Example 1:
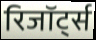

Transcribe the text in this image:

रिजॉर्ट्स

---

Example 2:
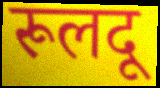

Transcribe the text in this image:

रूलदू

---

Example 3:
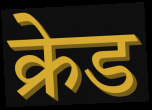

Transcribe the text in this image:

क्रेड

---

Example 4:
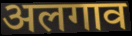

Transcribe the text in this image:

अलगाव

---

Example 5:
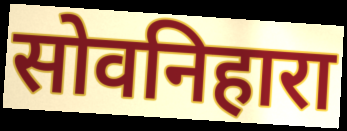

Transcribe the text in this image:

सोवनिहारा